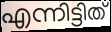
എന്നിട്ടിത്